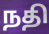
நதி